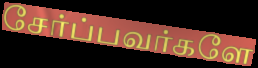
சேர்ப்பவர்களே